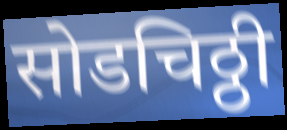
सोडचिठ्ठी